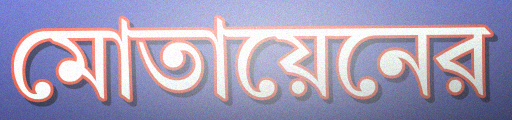
মোতায়েনের